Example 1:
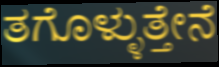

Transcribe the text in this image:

ತಗೊಳ್ಳುತ್ತೇನೆ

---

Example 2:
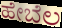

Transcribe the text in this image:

ಹೇಬೆಲ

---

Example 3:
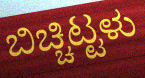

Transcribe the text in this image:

ಬಿಚ್ಚಿಟ್ಟಳು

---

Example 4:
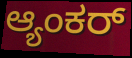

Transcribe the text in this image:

ಆ್ಯಂಕರ್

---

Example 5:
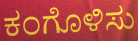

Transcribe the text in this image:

ಕಂಗೊಳಿಸು